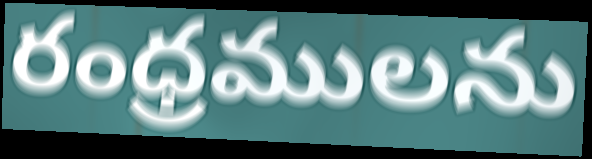
రంధ్రములను